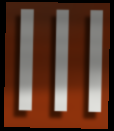
Ill